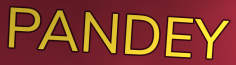
PANDEY